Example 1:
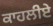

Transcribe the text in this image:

ਕਾਹਲੀਏ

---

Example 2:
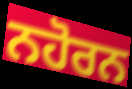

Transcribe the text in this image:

ਨਹੋਰਨ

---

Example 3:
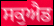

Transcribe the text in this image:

ਸਕੁਐਡ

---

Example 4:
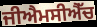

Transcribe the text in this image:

ਜੀਐਮਸੀਐੱਚ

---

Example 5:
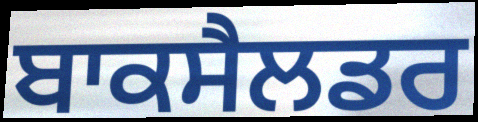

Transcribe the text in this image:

ਬਾਕਸੈਲਡਰ